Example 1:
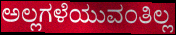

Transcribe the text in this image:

ಅಲ್ಲಗಳೆಯುವಂತಿಲ್ಲ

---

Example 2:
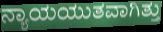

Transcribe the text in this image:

ನ್ಯಾಯಯುತವಾಗಿತ್ತು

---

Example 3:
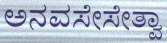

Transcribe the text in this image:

ಅನವಸೇಸೇತ್ವಾ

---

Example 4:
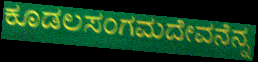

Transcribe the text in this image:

ಕೂಡಲಸಂಗಮದೇವನೆನ್ನ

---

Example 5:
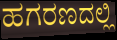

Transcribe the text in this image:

ಹಗರಣದಲ್ಲಿ